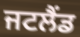
ਜਟਲੈਂਡ